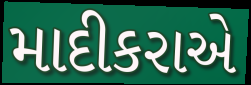
માદીકરાએ